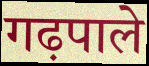
गढ़पाले